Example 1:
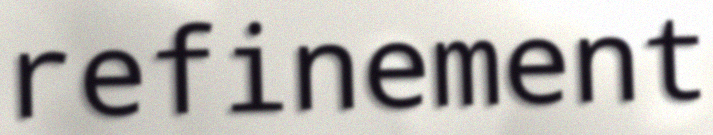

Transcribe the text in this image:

refinement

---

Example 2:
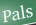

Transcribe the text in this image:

Pals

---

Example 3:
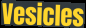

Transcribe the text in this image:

Vesicles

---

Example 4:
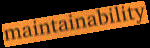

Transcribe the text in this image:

maintainability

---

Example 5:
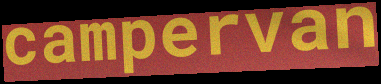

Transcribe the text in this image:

campervan